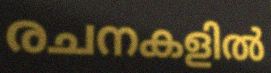
രചനകളിൽ